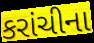
કરાંચીના